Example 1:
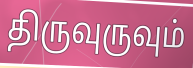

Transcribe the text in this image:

திருவுருவும்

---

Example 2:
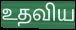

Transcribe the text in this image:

உதவிய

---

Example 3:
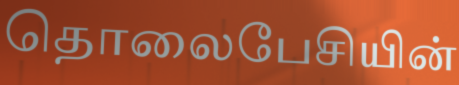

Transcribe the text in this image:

தொலைபேசியின்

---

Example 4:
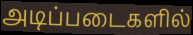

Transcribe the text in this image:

அடிப்படைகளில்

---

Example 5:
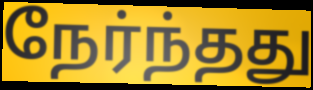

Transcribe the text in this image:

நேர்ந்தது